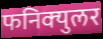
फनिक्युलर